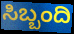
ಸಿಬ್ಬಂದಿ